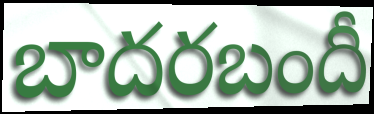
బాదరబందీ